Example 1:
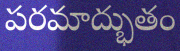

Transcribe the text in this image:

పరమాద్భుతం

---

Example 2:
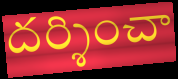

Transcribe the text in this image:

దర్శించా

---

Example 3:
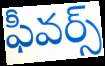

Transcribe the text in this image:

ఫీవర్స్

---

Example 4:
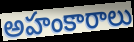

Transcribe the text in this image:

అహంకారాలు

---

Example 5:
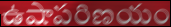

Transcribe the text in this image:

ఉషాపరిణయం